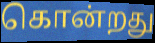
கொன்றது